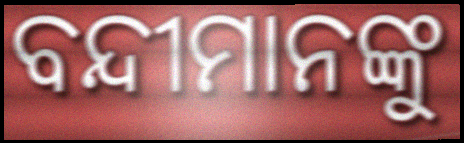
ବନ୍ଦୀମାନଙ୍କୁ